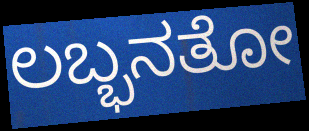
ಲಬ್ಭನತೋ